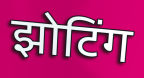
झोटिंग